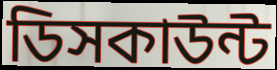
ডিসকাউন্ট